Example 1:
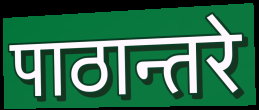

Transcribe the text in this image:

पाठान्तरे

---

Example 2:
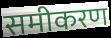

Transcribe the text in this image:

समीकरण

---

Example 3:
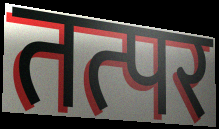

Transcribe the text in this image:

तत्‍पर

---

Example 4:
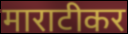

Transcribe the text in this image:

माराटीकर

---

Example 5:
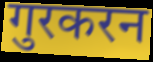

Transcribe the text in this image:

गुरकरन